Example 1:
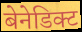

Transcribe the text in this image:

बेनेडिक्ट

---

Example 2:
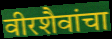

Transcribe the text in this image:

वीरशैवांचा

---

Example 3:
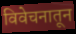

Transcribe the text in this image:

विवेचनातून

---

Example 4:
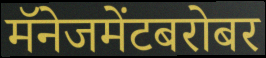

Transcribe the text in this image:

मॅनेजमेंटबरोबर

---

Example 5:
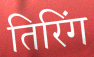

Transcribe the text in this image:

तिरिंग